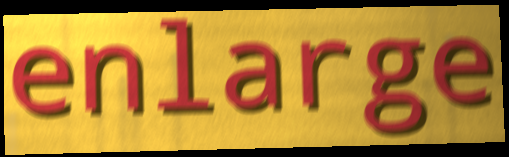
enlarge